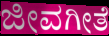
ಜೀವಗೀತೆ